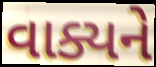
વાક્યને